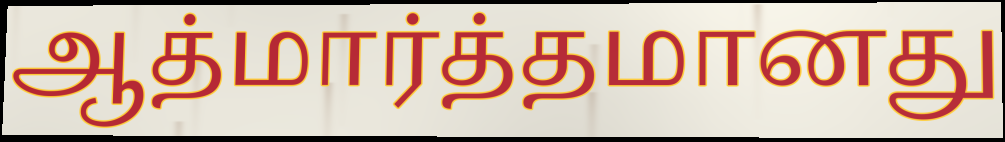
ஆத்மார்த்தமானது